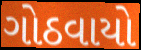
ગોઠવાયો